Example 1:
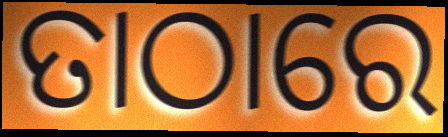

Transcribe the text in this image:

ତାଠାରେ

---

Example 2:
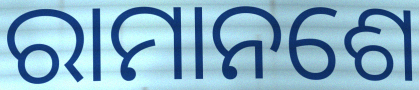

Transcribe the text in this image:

ରାମାନଶେ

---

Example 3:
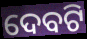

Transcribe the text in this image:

ଦେବଟି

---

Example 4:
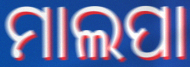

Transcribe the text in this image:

ମାଲପା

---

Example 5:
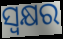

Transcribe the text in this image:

ସ୍ୱକ୍ଷର